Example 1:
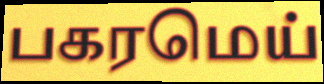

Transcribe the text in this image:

பகரமெய்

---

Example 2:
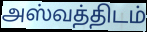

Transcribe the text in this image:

அஸ்வத்திடம்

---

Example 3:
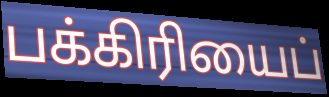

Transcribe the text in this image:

பக்கிரியைப்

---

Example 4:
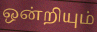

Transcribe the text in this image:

ஒன்றியும்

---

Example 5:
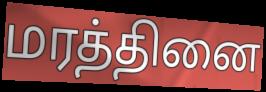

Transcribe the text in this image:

மரத்தினை